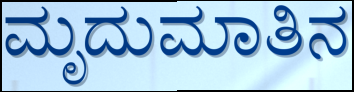
ಮೃದುಮಾತಿನ